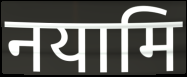
नयामि